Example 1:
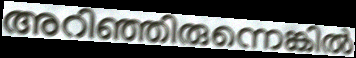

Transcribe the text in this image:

അറിഞ്ഞിരുന്നെങ്കിൽ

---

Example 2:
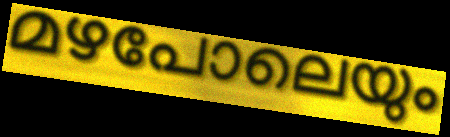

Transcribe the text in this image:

മഴപോലെയും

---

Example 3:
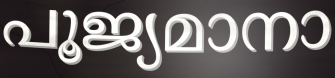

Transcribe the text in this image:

പൂജ്യമാനാ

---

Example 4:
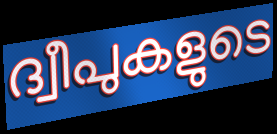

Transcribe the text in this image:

ദ്വീപുകളുടെ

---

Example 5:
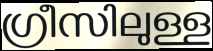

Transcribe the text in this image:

ഗ്രീസിലുള്ള